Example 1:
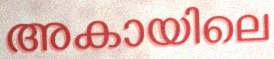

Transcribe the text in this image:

അകായിലെ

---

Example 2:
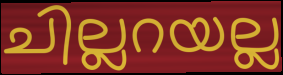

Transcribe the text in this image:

ചില്ലറയല്ല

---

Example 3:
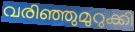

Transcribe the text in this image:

വരിഞ്ഞുമുറുക്കി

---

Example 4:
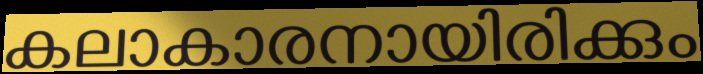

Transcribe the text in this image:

കലാകാരനായിരിക്കും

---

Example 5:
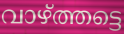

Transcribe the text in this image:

വാഴ്ത്തട്ടെ